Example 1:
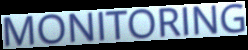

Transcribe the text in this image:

MONITORING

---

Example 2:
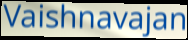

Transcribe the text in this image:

Vaishnavajan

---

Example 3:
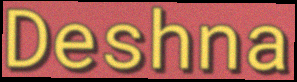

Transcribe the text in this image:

Deshna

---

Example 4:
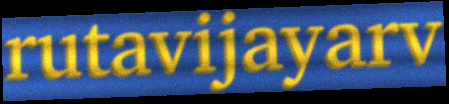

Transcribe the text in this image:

rutavijayarv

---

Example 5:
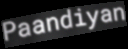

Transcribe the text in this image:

Paandiyan